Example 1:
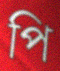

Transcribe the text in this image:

পি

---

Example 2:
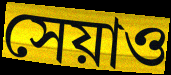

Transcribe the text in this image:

সেয়াও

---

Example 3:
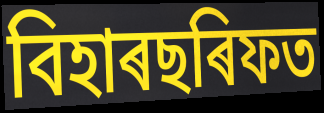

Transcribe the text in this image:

বিহাৰছৰিফত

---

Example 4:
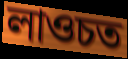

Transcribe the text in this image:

লাওচত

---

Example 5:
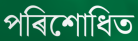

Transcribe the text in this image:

পৰিশোধিত